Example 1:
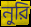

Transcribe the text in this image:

নুরি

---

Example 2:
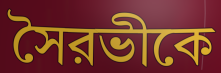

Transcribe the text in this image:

সৈরভীকে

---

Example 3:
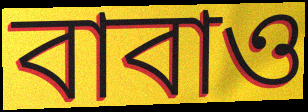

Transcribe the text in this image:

বাবাও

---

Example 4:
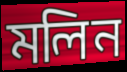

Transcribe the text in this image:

মলিন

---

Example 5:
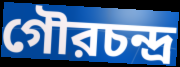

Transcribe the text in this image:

গৌরচন্দ্র